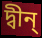
দ্বীন্